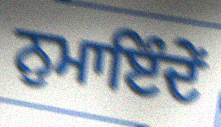
ਨੁਮਾਇੰਦੇਂ